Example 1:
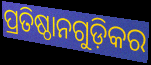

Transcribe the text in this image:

ପ୍ରତିଷ୍ଠାନଗୁଡ଼ିକର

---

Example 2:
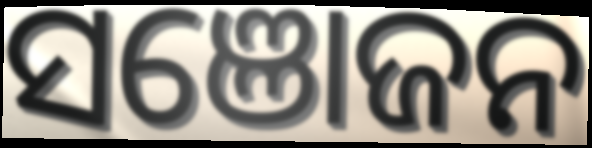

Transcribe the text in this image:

ସଞୋଜନ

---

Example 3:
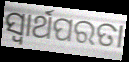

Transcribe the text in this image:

ସ୍ବାର୍ଥପରତା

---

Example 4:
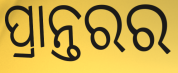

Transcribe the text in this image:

ପ୍ରାନ୍ତରର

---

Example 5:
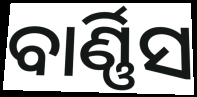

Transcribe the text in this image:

ବାର୍ଣ୍ଣିସ